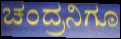
ಚಂದ್ರನಿಗೂ